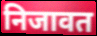
निजावत